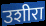
उशीरा